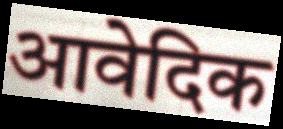
आवेदिक